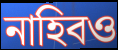
নাহিবও